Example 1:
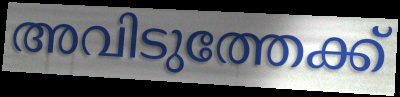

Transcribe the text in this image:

അവിടുത്തേക്ക്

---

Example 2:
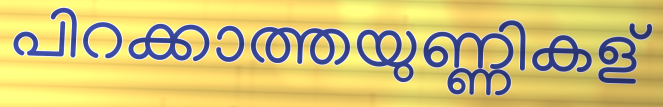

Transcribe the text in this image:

പിറക്കാത്തയുണ്ണികള്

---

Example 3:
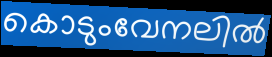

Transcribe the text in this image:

കൊടുംവേനലിൽ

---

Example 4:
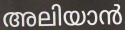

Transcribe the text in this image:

അലിയാൻ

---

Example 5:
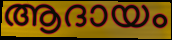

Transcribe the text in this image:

ആദായം